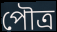
পৌত্র